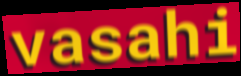
vasahi